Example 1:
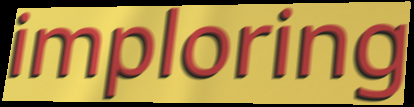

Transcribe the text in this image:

imploring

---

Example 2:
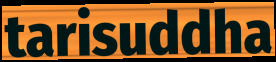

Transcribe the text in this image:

tarisuddha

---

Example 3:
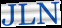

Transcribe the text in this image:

JLN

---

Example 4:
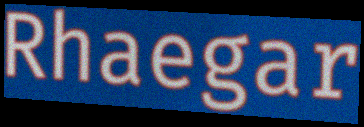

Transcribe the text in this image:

Rhaegar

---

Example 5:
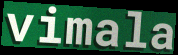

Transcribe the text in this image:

vimala